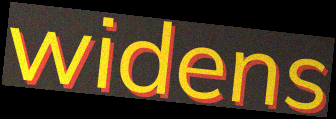
widens